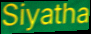
Siyatha